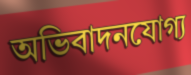
অভিবাদনযোগ্য